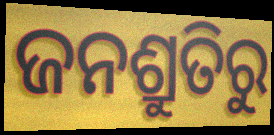
ଜନଶ୍ରୁତିରୁ